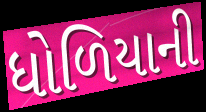
ધોળિયાની